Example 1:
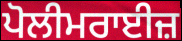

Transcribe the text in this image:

ਪੋਲੀਮਰਾਈਜ਼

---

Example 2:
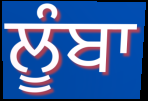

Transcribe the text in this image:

ਲੂੰਬਾ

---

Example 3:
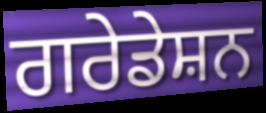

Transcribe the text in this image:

ਗਰੇਡੇਸ਼ਨ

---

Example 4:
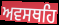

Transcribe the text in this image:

ਅਵਸਥਹਿ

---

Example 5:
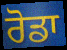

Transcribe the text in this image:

ਰੋਡਾ